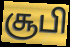
சூபி